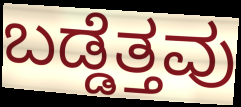
ಬಡ್ಡೆತ್ತವು